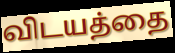
விடயத்தை